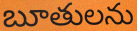
బూతులను